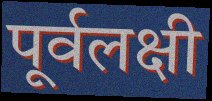
पूर्वलक्षी